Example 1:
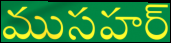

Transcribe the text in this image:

ముసహర్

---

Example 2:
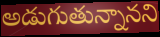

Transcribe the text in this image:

అడుగుతున్నానని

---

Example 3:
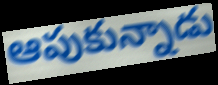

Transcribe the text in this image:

ఆపుకున్నాడు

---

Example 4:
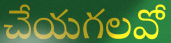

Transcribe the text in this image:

చేయగలవో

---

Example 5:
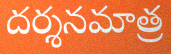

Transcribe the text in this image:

దర్శనమాత్ర